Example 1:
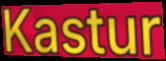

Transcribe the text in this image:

Kastur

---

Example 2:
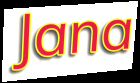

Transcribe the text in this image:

Jana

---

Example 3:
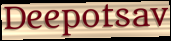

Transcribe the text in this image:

Deepotsav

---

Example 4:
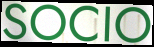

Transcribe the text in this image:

SOCIO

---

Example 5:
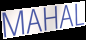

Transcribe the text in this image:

MAHAL